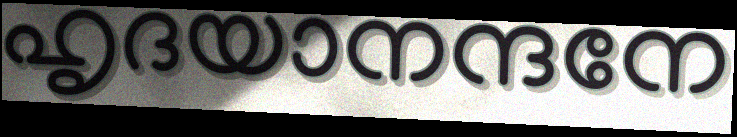
ഹൃദയാനന്ദനേ